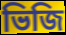
ভিজি